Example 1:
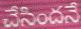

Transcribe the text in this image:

చేసిందనే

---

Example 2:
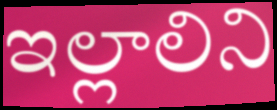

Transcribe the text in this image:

ఇల్లాలిని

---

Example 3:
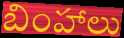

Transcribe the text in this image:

బింహాలు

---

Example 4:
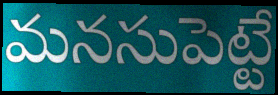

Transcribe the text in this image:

మనసుపెట్టే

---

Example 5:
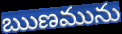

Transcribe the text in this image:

ఋణమును